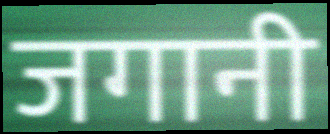
जगानी